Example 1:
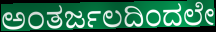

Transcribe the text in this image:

ಅಂತರ್ಜಲದಿಂದಲೇ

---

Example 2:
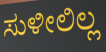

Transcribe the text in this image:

ಸುಳೀಲಿಲ್ಲ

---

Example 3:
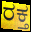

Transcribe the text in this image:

ರಕ್ತ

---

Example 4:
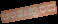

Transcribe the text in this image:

ಅಂತಃಪುರದ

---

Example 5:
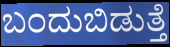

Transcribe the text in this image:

ಬಂದುಬಿಡುತ್ತೆ